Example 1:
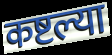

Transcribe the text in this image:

कष्टल्या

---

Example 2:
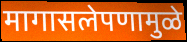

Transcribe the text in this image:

मागासलेपणामुळे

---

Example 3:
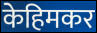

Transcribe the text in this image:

केहिमकर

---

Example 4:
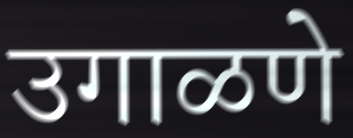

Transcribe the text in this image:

उगाळणे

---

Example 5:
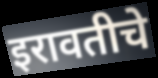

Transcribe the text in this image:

इरावतीचे